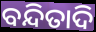
ବନ୍ଦିତାଦି